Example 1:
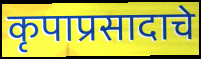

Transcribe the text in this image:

कृपाप्रसादाचे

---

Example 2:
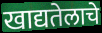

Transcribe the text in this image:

खाद्यतेलाचे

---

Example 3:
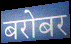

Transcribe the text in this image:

बरोबर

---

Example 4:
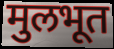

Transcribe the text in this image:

मुलभूत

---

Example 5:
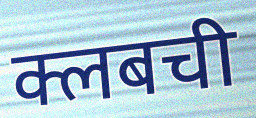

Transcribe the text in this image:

क्लबची